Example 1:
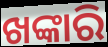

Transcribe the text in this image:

ଖଙ୍କାରି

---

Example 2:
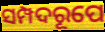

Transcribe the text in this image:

ସମ୍ପଦରୂପେ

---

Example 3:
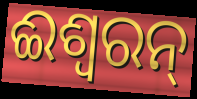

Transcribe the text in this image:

ଈଶ୍ୱରନ୍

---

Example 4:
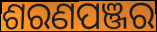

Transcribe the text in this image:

ଶରଣପଞ୍ଜର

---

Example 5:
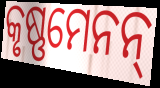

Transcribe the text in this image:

କୃଷ୍ଣମେନନ୍